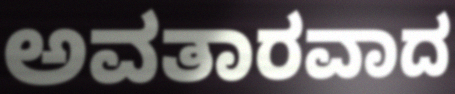
ಅವತಾರವಾದ